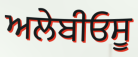
ਅਲੇਬੀਓਸੂ